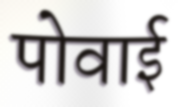
पोवाई